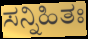
ಸನ್ನಿಹಿತಃ